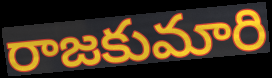
రాజకుమారి